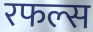
रफल्स